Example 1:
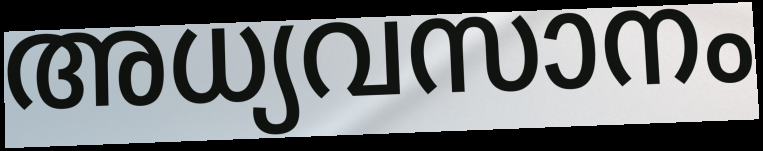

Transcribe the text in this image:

അധ്യവസാനം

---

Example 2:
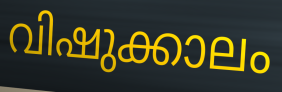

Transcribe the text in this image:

വിഷുക്കാലം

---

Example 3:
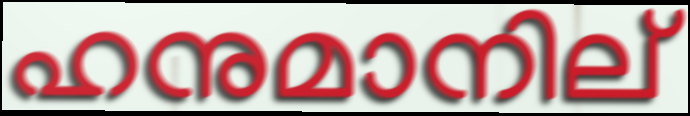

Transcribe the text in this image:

ഹനുമാനില്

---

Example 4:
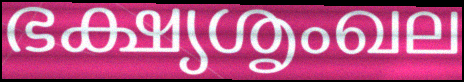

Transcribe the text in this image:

ഭക്ഷ്യശൃംഖല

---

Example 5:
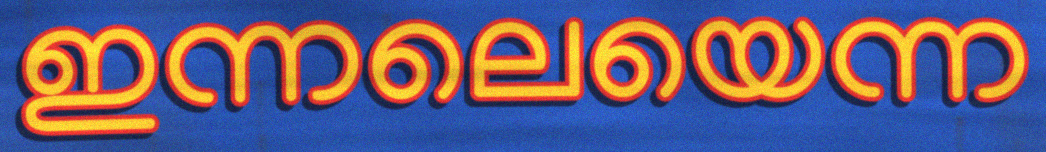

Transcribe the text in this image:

ഇന്നലെയെന്ന